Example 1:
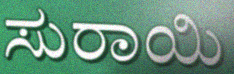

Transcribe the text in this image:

ಸುರಾಯಿ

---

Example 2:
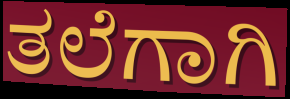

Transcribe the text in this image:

ತಲೆಗಾಗಿ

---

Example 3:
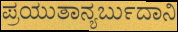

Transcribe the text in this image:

ಪ್ರಯುತಾನ್ಯರ್ಬುದಾನಿ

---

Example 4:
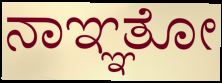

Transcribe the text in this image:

ನಾಞ್ಞತೋ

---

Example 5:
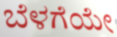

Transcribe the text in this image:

ಬೆಳಗೆಯೇ